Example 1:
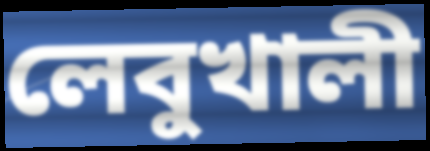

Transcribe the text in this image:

লেবুখালী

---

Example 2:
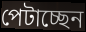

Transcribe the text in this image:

পেটাচ্ছেন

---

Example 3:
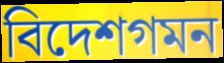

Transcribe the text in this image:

বিদেশগমন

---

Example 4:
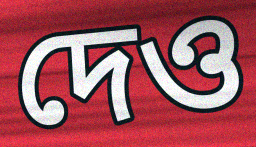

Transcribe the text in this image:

দেও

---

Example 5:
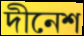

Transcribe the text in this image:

দীনেশ